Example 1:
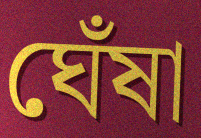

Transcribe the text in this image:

ঘেঁষা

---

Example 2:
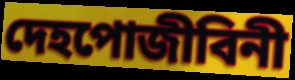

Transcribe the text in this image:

দেহপোজীবিনী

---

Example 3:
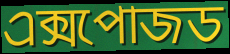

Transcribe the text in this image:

এক্সপোজড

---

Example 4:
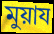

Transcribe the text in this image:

মুয়ায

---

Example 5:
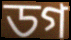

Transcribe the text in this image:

ডগ